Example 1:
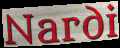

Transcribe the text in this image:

Nardi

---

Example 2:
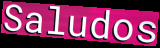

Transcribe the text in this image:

Saludos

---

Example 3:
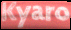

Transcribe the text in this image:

Kyaro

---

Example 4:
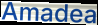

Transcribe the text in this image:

Amadea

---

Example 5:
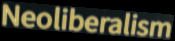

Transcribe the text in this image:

Neoliberalism